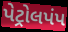
પેટ્રોલપંપ